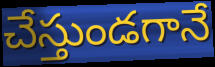
చేస్తుండగానే